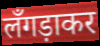
लँगड़ाकर